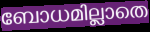
ബോധമില്ലാതെ